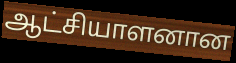
ஆட்சியாளனான